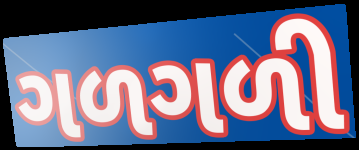
ગળગળી